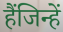
हैंजिन्हें